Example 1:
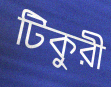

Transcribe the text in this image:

টিকুরী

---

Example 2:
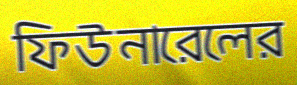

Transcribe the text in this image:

ফিউনারেলের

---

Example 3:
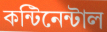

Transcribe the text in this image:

কন্টিনেন্টাল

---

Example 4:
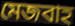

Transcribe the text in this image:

মেজবাহ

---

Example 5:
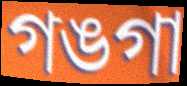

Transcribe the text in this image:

গঙগা